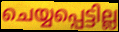
ചെയ്യപ്പെട്ടില്ല